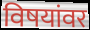
विषयांवर